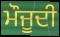
ਮੌਜੂਦੀ